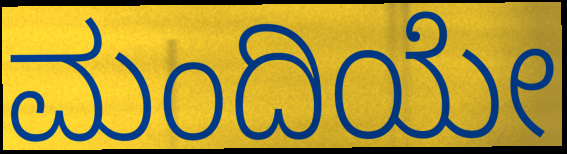
ಮಂದಿಯೇ